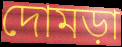
দোমড়া